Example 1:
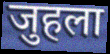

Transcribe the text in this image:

जुहला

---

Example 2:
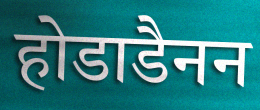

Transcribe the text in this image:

होडाडैनन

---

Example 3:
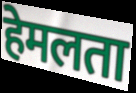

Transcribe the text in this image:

हेमलता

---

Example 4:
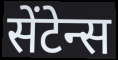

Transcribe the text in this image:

सेंटेन्स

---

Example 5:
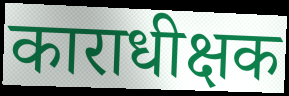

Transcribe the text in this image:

काराधीक्षक